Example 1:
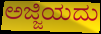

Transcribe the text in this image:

ಅಜ್ಜಿಯದು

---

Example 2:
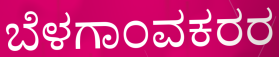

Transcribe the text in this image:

ಬೆಳಗಾಂವಕರರ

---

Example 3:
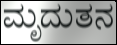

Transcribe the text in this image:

ಮೃದುತನ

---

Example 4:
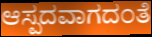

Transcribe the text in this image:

ಆಸ್ಪದವಾಗದಂತೆ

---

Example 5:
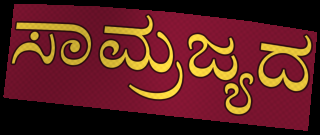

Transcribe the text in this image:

ಸಾಮ್ರಜ್ಯದ